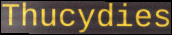
Thucydies